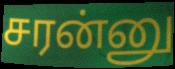
சரன்னு